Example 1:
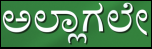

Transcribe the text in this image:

ಅಲ್ಲಾಗಲೇ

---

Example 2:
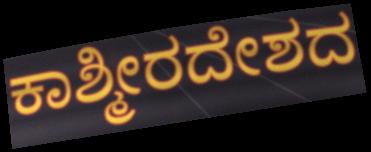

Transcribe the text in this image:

ಕಾಶ್ಮೀರದೇಶದ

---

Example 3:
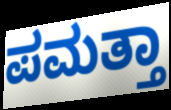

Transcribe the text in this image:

ಪಮತ್ತಾ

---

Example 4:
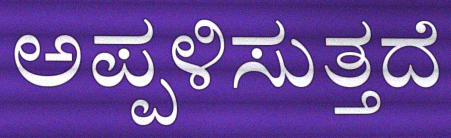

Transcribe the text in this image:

ಅಪ್ಪಳಿಸುತ್ತದೆ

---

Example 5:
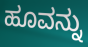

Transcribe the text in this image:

ಹೂವನ್ನು